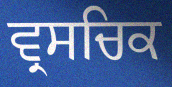
ਵ੍ਰਸਚਿਕ